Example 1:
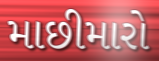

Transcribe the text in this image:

માછીમારો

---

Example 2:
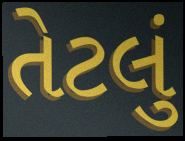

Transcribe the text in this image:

તેટલું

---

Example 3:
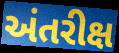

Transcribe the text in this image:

અંતરીક્ષ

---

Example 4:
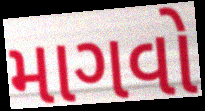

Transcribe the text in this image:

માગવો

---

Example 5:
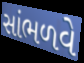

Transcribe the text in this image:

સાંભળવે